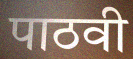
पाठवी